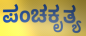
ಪಂಚಕೃತ್ಯ